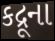
કદ્રૂના